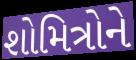
શોમિત્રોને